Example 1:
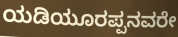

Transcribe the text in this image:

ಯಡಿಯೂರಪ್ಪನವರೇ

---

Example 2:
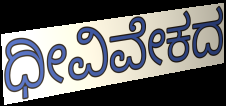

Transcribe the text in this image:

ಧೀವಿವೇಕದ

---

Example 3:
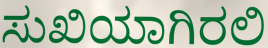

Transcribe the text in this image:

ಸುಖಿಯಾಗಿರಲಿ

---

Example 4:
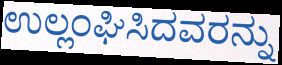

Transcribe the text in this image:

ಉಲ್ಲಂಘಿಸಿದವರನ್ನು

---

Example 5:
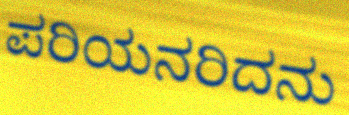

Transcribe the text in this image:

ಪರಿಯನರಿದನು